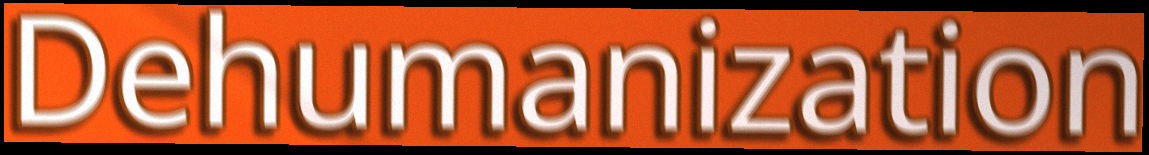
Dehumanization